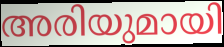
അരിയുമായി